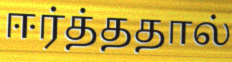
ஈர்த்ததால்